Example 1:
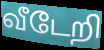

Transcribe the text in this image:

வீடேறி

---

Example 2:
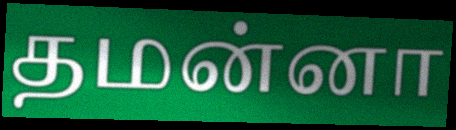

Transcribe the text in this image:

தமன்னா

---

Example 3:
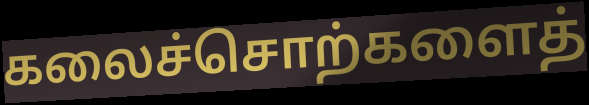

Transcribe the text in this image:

கலைச்சொற்களைத்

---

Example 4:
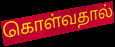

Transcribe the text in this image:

கொள்வதால்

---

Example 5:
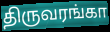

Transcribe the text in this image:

திருவரங்கா